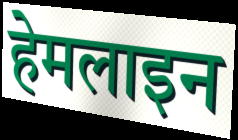
हेमलाइन